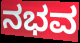
ನಭವ